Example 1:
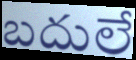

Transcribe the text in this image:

బదులే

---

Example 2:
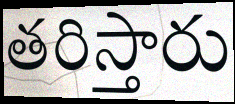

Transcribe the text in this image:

తరిస్తారు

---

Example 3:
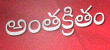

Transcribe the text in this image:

అంతక్రితం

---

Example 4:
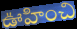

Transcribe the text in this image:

ఊహించి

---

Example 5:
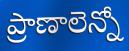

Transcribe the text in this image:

ప్రాణాలెన్నో